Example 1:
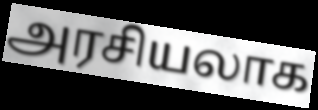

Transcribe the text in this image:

அரசியலாக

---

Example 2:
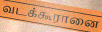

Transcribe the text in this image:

வடக்கூரானை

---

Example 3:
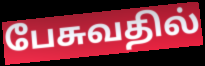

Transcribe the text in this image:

பேசுவதில்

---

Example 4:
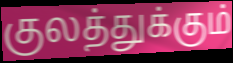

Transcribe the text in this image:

குலத்துக்கும்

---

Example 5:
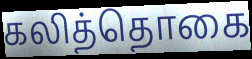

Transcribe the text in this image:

கலித்தொகை